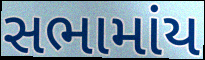
સભામાંય